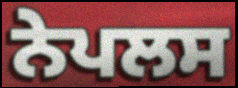
ਨੇਪਲਸ